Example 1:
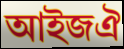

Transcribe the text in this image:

আইজঐ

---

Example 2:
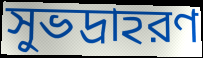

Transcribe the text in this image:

সুভদ্রাহরণ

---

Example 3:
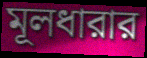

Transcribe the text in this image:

মূলধারার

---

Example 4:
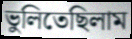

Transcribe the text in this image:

ভুলিতেছিলাম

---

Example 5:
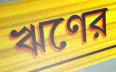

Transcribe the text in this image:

ঋণের